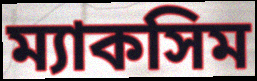
ম্যাকসিম